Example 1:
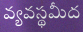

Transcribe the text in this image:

వ్యవస్థమీద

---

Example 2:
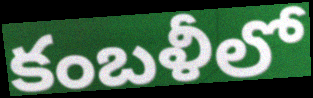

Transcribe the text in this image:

కంబళీలో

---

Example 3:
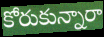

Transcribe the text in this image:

కోరుకున్నారా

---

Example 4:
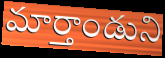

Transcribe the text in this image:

మార్తాండుని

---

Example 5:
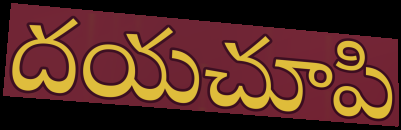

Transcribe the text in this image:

దయచూపి